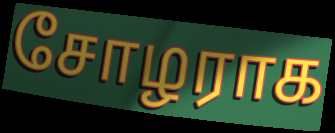
சோழராக